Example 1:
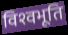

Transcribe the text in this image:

विश्वभूति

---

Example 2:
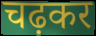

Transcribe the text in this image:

चढ़कर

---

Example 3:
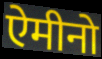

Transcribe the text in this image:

ऐमीनो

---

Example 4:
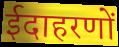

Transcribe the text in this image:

ईदाहरणों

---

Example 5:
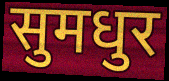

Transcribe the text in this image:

सुमधुर